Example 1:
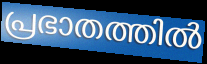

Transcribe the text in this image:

പ്രഭാതത്തിൽ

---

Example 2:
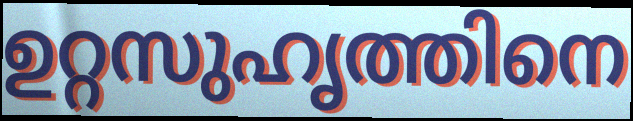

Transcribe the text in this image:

ഉറ്റസുഹൃത്തിനെ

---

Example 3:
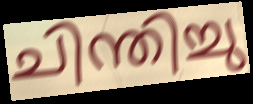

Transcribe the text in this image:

ചിന്തിച്ചു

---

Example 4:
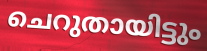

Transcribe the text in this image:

ചെറുതായിട്ടും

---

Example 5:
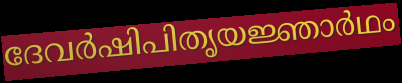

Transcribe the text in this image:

ദേവർഷിപിതൃയജ്ഞാർഥം